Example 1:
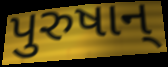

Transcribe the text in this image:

પુરુષાન્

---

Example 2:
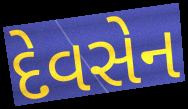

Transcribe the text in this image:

દેવસેન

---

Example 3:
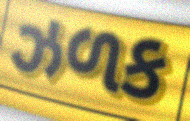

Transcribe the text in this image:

ઝળક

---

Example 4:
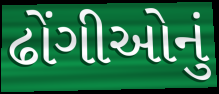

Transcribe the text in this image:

ઢોંગીઓનું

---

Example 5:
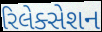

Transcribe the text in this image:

રિલેક્સેશન